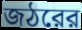
জঠরের